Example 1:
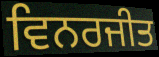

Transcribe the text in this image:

ਵਿਨਰਜੀਤ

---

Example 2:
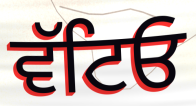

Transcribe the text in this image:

ਵੱਟਿਓ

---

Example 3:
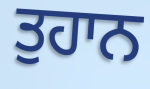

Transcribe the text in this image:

ਤੁਹਾਨ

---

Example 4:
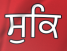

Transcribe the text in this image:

ਸੁਕਿ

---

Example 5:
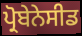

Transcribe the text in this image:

ਪ੍ਰੋਬੇਨੇਸੀਡ